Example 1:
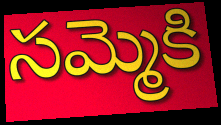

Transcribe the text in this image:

సమ్మెకి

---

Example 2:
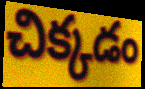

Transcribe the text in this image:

చిక్కడం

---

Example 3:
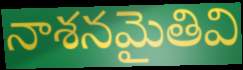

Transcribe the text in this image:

నాశనమైతివి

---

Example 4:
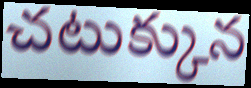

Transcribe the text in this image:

చటుక్కున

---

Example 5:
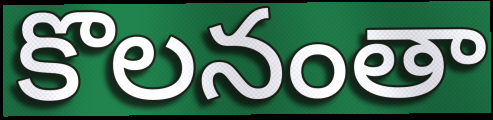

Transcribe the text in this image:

కొలనంతా